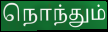
நொந்தும்